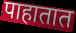
पाहातात